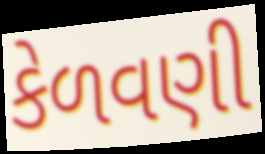
કેળવણી